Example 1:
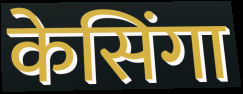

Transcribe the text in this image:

केसिंगा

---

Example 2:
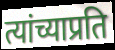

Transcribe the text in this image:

त्यांच्याप्रति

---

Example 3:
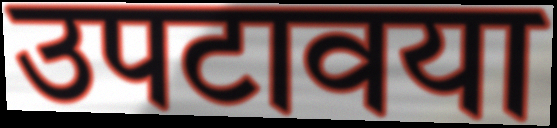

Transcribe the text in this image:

उपटावया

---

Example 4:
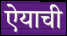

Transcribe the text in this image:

ऐयाची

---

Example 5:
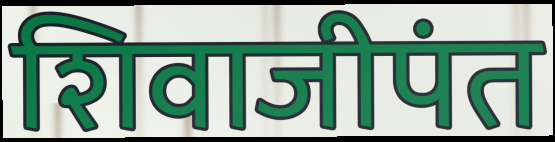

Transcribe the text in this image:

शिवाजीपंत